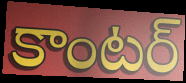
కాంటర్